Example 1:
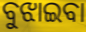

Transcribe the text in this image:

ବୁଝାଇବା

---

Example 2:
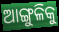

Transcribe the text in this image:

ଆଙ୍ଗୁଳିକୁ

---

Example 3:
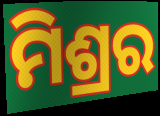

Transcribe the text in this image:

ମିଶ୍ରର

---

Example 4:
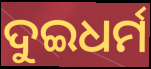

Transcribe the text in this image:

ଦୁଇଧର୍ମ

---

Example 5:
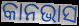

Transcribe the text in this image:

କାନଭାସ